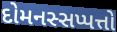
દોમનસ્સપ્પત્તો